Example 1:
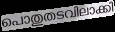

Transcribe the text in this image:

പൊതുതടവിലാക്കി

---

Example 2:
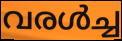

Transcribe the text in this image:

വരൾച്ച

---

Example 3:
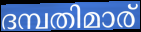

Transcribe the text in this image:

ദമ്പതിമാര്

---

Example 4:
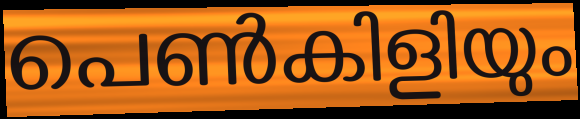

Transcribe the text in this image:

പെൺകിളിയും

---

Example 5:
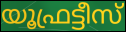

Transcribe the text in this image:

യൂഫ്രട്ടീസ്